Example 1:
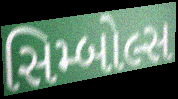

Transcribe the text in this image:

સિમ્બોલ્સ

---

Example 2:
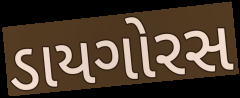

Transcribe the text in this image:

ડાયગોરસ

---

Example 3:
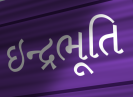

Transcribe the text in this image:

ઇન્દ્રભૂતિ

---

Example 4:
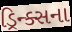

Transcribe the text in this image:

ડ્રિન્ક્સના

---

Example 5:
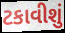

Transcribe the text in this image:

ટકાવીશું